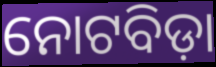
ନୋଟବିଡ଼ା